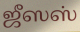
ஜீஸஸ்